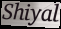
Shiyal